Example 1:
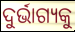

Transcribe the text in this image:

ଦୁର୍ଭାଗ୍ୟକୁ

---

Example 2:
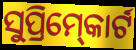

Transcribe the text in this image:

ସୁପ୍ରିମ୍‍କୋର୍ଟ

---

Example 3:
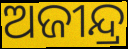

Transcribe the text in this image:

ଅଜୀନ୍ଦ୍ର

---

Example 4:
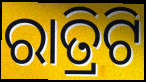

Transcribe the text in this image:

ରାତ୍ରିଟି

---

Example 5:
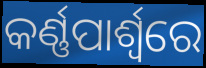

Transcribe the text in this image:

କର୍ଣ୍ଣପାର୍ଶ୍ୱରେ